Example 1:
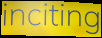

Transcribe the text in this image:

inciting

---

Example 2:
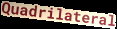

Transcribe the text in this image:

Quadrilateral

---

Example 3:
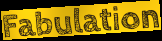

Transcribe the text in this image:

Fabulation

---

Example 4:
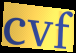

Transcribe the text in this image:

cvf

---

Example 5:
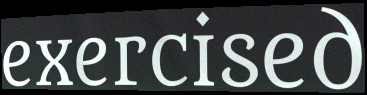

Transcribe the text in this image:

exercised